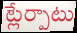
ట్లేర్పాటు